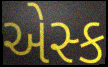
એસ્ક